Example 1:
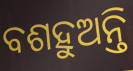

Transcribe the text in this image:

ବଶହୁଅନ୍ତି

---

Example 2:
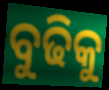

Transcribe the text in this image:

ବୁଢିକୁ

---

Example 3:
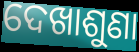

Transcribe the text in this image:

ଦେଖାଶୁଣା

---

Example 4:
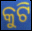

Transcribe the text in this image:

କୁଟି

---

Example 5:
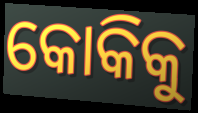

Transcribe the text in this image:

କୋକିକୁ